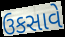
ઉકસાવે